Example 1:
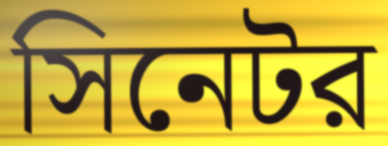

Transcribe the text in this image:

সিনেটর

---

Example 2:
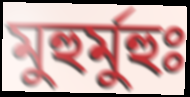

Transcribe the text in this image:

মুহুর্মুহুঃ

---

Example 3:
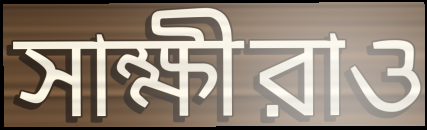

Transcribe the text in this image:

সাক্ষীরাও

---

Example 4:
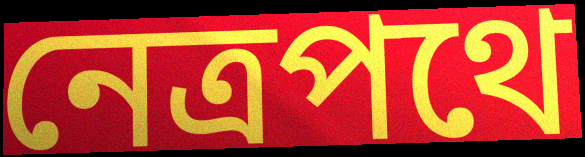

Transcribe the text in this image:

নেত্রপথে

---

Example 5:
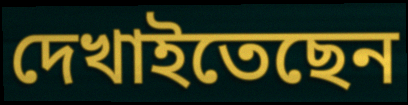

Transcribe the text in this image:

দেখাইতেছেন